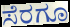
ಸೆರಗೂ